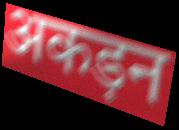
अकड़न